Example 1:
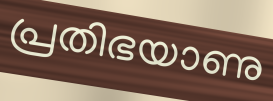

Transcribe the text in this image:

പ്രതിഭയാണു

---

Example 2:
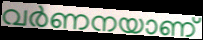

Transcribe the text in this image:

വർണനയാണ്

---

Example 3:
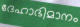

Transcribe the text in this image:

ദേഹാഭിമാനം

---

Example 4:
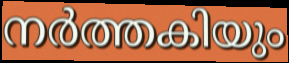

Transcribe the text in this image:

നർത്തകിയും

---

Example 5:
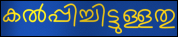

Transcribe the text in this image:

കൽപ്പിച്ചിട്ടുള്ളതു